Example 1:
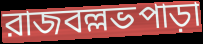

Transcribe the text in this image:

রাজবল্লভপাড়া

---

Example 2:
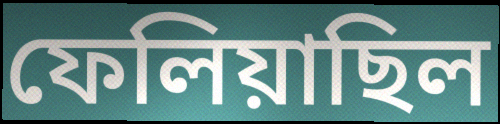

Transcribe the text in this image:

ফেলিয়াছিল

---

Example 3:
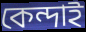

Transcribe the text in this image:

কেন্দাই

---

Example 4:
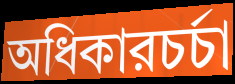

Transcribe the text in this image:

অধিকারচর্চা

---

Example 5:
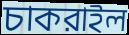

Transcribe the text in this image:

চাকরাইল